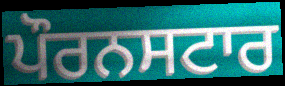
ਪੌਰਨਸਟਾਰ